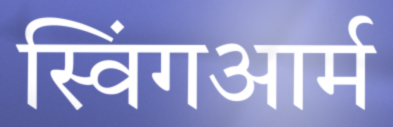
स्विंगआर्म